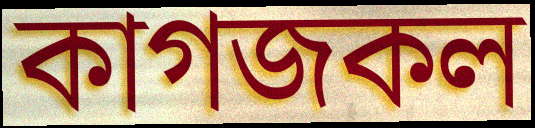
কাগজকল